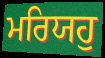
ਮਰਿਯਹੁ